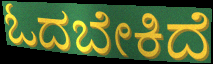
ಓದಬೇಕಿದೆ